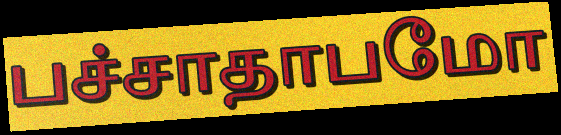
பச்சாதாபமோ